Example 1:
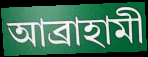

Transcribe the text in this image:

আব্ৰাহামী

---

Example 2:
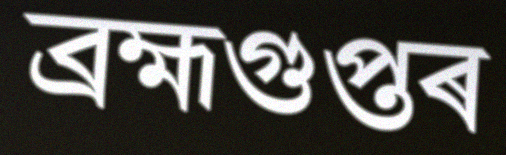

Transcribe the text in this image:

ব্ৰহ্মগুপ্তৰ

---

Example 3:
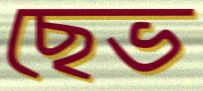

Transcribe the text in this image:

ছেভ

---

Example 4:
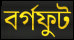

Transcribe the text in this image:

বৰ্গফুট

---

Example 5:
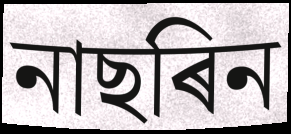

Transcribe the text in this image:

নাছৰিন